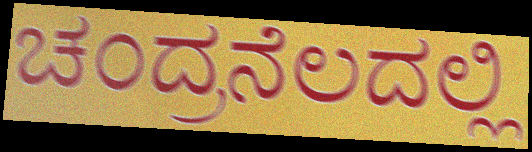
ಚಂದ್ರನೆಲದಲ್ಲಿ